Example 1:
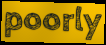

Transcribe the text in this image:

poorly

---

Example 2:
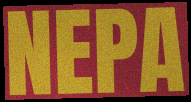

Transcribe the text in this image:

NEPA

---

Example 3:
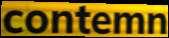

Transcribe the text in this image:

contemn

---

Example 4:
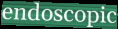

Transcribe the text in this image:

endoscopic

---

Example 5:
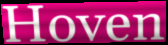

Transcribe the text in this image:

Hoven